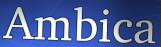
Ambica